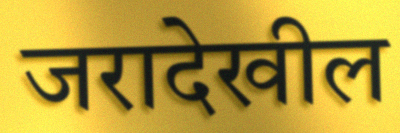
जरादेखील